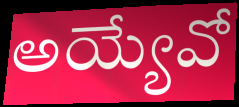
అయ్యేవో